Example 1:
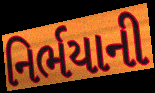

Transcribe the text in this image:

નિર્ભયાની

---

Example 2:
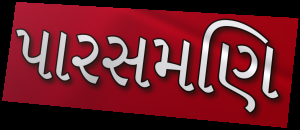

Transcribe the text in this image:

પારસમણિ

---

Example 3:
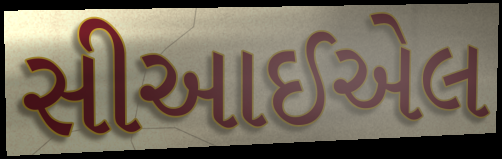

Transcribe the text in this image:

સીઆઈએલ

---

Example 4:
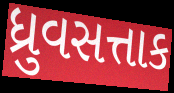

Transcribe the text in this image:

ધ્રુવસત્તાક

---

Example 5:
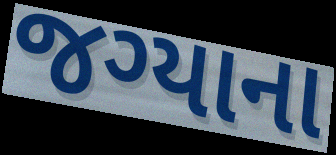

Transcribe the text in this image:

જગ્યાના